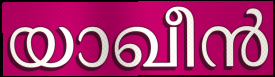
യാഖീൻ